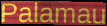
Palamau